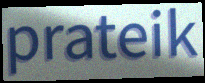
prateik